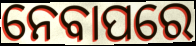
ନେବାପରେ